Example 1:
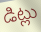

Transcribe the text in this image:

డిట్లు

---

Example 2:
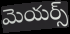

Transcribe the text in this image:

మెయర్స్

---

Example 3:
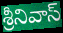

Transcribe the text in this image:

శ్రీనివాస్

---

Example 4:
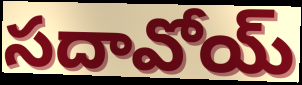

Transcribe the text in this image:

సదావోయ్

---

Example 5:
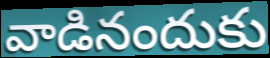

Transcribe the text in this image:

వాడినందుకు